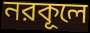
নরকূলে